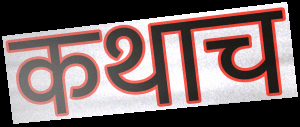
कथाच